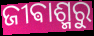
ଜୀଵାଶ୍ମରୁ